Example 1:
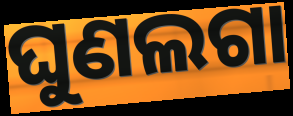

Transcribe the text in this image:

ଘୁଣଲଗା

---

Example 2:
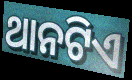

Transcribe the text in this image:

ଥାନଟିଏ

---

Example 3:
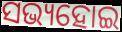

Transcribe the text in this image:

ସଭ୍ୟହୋଇ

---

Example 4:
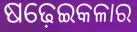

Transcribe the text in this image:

ଷଢ଼େଇକଳାର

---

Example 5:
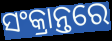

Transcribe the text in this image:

ସଂକ୍ରାନ୍ତରେ